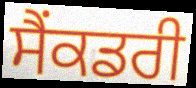
ਸੈਂਕਡਰੀ